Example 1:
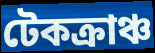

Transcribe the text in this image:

টেকক্রাঞ্চ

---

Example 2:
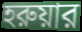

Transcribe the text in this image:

হরুয়ার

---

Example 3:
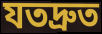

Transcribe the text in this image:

যতদ্রুত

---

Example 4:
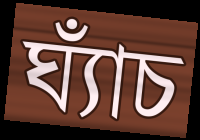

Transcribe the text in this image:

ঘ্যাঁচ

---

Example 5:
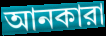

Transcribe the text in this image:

আনকারা